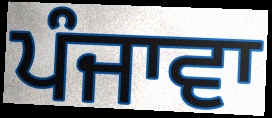
ਪੰਜਾਵਾ